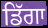
ਡਿੱਗਾ